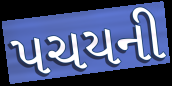
પચયની